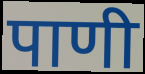
पाणी